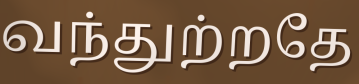
வந்துற்றதே